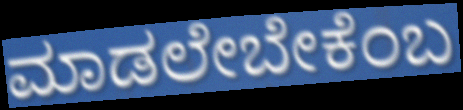
ಮಾಡಲೇಬೇಕೆಂಬ